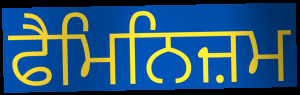
ਫੈਮਿਨਿਜ਼ਮ